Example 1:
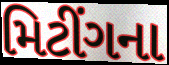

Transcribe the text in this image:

મિટીંગના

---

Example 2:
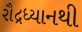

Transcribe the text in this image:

રૌદ્રધ્યાનથી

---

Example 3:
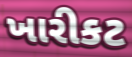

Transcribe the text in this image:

ખારીકટ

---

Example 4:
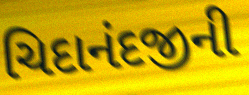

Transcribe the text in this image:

ચિદાનંદજીની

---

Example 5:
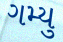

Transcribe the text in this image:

ગમ્યુ